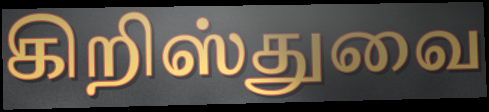
கிறிஸ்துவை